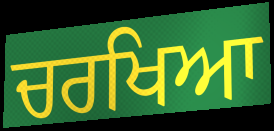
ਚਰਖਿਆ